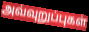
அவ்வுறுப்புகள்